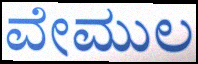
ವೇಮುಲ